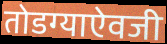
तोडग्याऐवजी